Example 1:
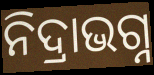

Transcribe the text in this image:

ନିଦ୍ରାଭଗ୍ନ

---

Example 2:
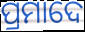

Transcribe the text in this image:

ପ୍ରମାଦେ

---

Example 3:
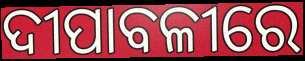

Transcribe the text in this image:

ଦୀପାବଳୀରେ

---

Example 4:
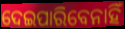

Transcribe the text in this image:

ଦେଇପାରିବେନାହିଁ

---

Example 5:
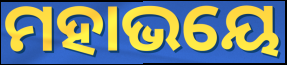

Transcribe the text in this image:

ମହାଭୟେ